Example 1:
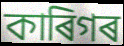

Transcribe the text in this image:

কাৰিগৰ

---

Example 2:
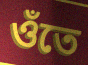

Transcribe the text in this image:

ওঁতে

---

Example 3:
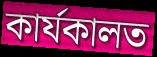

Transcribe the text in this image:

কাৰ্যকালত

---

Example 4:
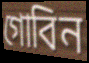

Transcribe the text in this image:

গোবিন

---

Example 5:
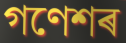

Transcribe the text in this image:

গণেশৰ